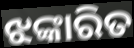
ଝଙ୍କାରିତ